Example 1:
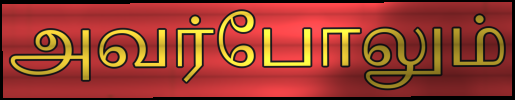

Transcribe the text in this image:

அவர்போலும்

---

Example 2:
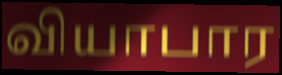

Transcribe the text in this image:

வியாபார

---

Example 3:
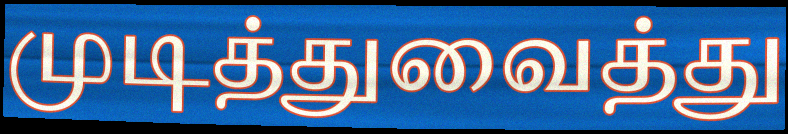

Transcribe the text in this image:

முடித்துவைத்து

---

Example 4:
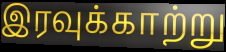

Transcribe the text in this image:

இரவுக்காற்று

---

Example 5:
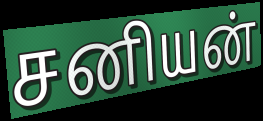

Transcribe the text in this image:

சனியன்